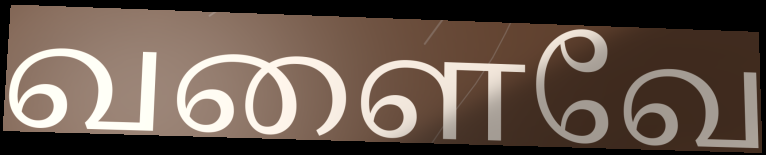
வளைவே